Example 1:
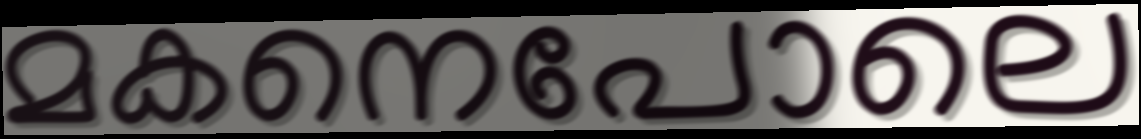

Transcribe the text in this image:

മകനെപോലെ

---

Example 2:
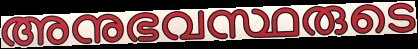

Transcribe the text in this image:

അനുഭവസ്ഥരുടെ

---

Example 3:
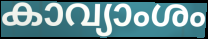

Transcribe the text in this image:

കാവ്യാംശം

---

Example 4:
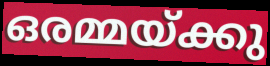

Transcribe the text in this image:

ഒരമ്മയ്ക്കു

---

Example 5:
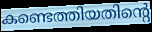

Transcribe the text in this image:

കണ്ടെത്തിയതിന്റെ